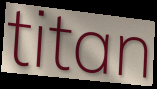
titan